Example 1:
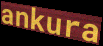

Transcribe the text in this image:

ankura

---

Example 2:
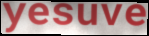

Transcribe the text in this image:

yesuve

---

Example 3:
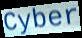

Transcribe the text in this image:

Cyber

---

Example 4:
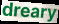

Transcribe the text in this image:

dreary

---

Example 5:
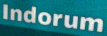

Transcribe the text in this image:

Indorum